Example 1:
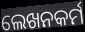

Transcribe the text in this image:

ଲେଖନକର୍ମ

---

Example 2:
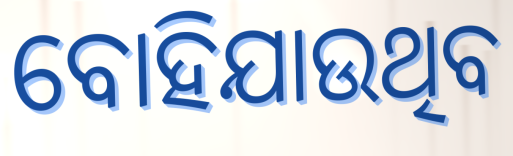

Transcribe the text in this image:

ବୋହିଯାଉଥିବ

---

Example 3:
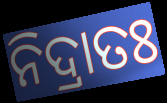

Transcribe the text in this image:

ନିଦ୍ରାତଃ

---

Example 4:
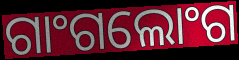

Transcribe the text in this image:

ଗାଂଗଲୋଂଗ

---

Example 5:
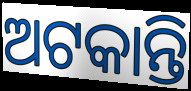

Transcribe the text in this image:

ଅଟକାନ୍ତି